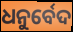
ଧନୁର୍ବେଦ